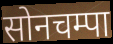
सोनचम्पा